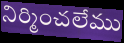
నిర్మించలేము